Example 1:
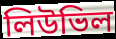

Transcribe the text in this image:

লিউভিল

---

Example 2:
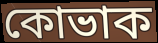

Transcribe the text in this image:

কোভাক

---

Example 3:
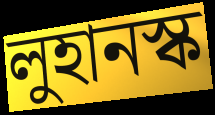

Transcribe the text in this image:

লুহানস্ক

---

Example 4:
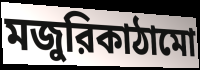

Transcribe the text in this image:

মজুরিকাঠামো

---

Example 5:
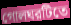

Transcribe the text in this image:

গোলঘরটিতে